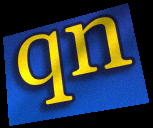
qn